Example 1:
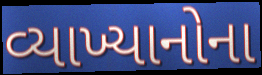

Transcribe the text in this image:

વ્યાખ્યાનોના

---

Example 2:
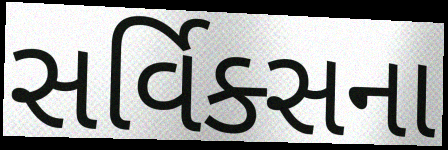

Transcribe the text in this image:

સર્વિક્સના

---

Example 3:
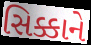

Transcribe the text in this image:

સિક્કાને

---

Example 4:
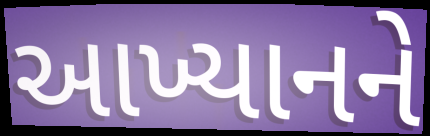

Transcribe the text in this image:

આખ્યાનને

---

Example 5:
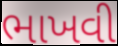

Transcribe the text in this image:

ભાખવી